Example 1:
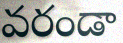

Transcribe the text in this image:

వరండా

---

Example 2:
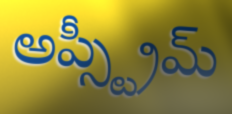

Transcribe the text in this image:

అప్స్ట్రీమ్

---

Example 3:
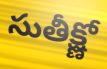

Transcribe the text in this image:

సుతీక్ష్ణో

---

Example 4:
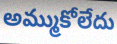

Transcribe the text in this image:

అమ్ముకోలేదు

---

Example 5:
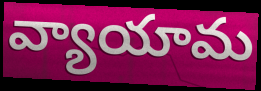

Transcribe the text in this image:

వ్యాయామ